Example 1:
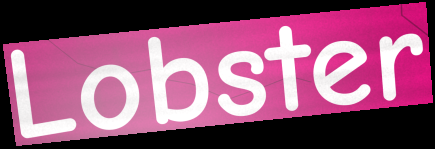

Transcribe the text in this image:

Lobster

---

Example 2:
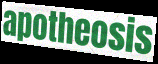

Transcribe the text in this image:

apotheosis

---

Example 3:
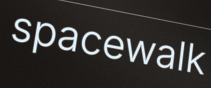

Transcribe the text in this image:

spacewalk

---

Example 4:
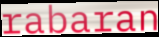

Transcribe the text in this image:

rabaran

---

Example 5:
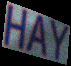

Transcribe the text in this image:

HAY